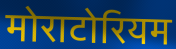
मोराटोरियम